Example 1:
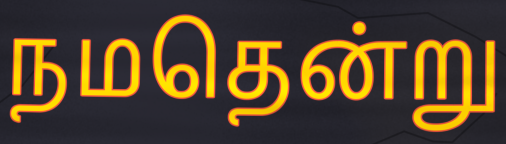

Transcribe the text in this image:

நமதென்று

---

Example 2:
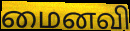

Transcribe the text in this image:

மைனவி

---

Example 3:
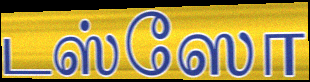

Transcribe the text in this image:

டஸ்ஸோ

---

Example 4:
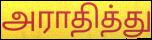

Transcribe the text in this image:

அராதித்து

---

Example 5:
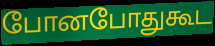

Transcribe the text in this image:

போனபோதுகூட